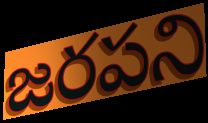
జరపని